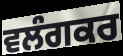
ਵਲੰਗਕਰ